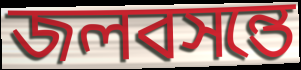
জলবসন্তে